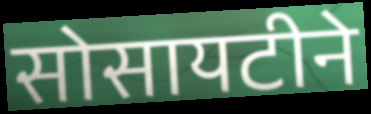
सोसायटीने